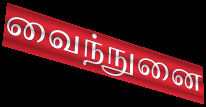
வைந்நுனை